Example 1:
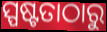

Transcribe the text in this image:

ସ୍ପଷ୍ଟତାଠାରୁ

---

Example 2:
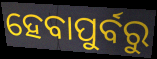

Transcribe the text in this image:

ହେବାପୁର୍ବରୁ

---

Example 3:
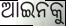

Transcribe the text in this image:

ଆଇନକୁ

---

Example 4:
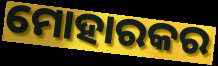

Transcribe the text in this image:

ମୋହାରକର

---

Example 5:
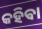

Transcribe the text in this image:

କହିଵା